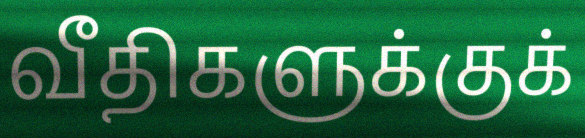
வீதிகளுக்குக்